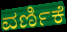
ವರ್ಣಿಕೆ